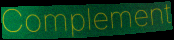
Complement